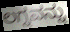
ಲಗ್ನವನ್ನು